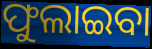
ଫୁଲାଇବା